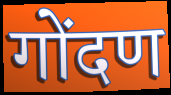
गोंदण